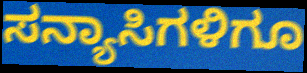
ಸನ್ಯಾಸಿಗಳಿಗೂ